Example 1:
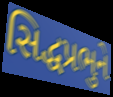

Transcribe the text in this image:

સિદ્ધપ્રભુને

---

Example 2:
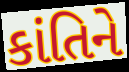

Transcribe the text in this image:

કાંતિને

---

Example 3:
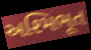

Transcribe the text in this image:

અશ્મિભૂત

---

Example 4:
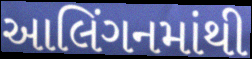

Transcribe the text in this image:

આલિંગનમાંથી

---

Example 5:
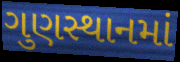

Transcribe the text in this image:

ગુણસ્થાનમાં